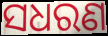
ସଧରଣ